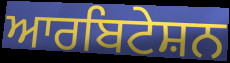
ਆਰਬਿਟੇਸ਼ਨ